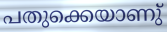
പതുക്കെയാണു്